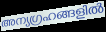
അന്യഗ്രഹങ്ങളിൽ